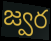
జ్వర